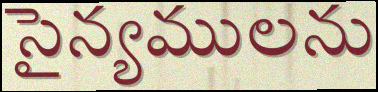
సైన్యములను